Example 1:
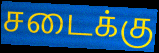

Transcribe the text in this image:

சடைக்கு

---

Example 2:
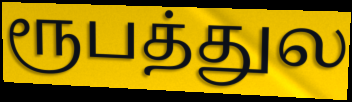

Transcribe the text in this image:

ரூபத்துல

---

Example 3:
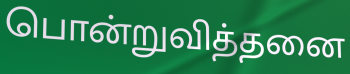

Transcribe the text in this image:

பொன்றுவித்தனை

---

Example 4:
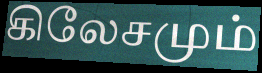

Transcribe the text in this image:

கிலேசமும்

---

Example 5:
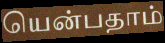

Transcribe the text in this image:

யென்பதாம்